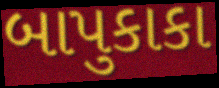
બાપુકાકા